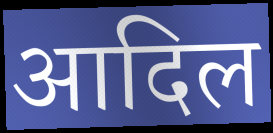
आदिल